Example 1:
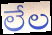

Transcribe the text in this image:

లేల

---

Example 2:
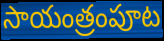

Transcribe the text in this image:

సాయంత్రంపూట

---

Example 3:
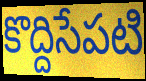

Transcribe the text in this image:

కొద్దిసేపటి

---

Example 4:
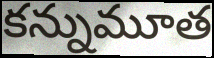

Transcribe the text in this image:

కన్నుమూత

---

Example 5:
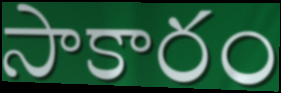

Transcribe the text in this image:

సాకారం